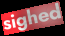
sighed